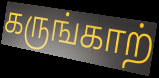
கருங்காற்